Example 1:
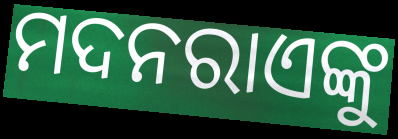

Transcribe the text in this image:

ମଦନରାଏଙ୍କୁ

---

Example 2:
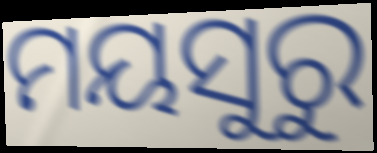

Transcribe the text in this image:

ମୟସୁରୁ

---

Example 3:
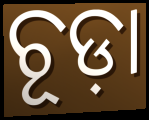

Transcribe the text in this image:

ଚୂଡ଼ା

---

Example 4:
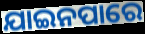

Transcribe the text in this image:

ଯାଇନପାରେ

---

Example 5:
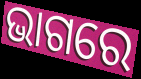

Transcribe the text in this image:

ଭାଗରେ